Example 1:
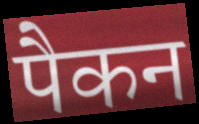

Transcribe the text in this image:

पैकन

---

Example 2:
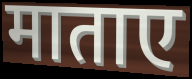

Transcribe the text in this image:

माताए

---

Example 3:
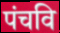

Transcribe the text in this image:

पंचवि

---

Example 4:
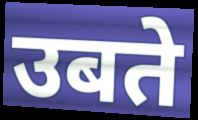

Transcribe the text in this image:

उबते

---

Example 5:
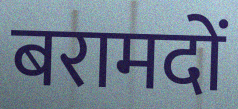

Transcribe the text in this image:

बरामदों